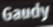
Gaudy